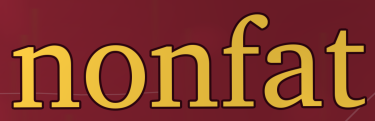
nonfat